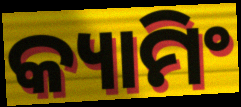
କ୍ୟାମିଂ